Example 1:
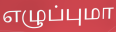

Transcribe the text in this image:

எழுப்புமா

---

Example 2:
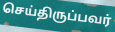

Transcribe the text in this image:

செய்திருப்பவர்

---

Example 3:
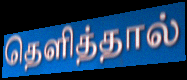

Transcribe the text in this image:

தெளித்தால்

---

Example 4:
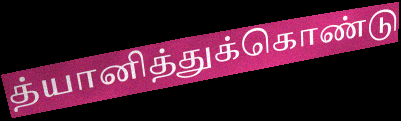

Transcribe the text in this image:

த்யானித்துக்கொண்டு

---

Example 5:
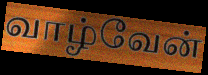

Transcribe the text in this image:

வாழ்வேன்